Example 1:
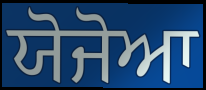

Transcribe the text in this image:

ਯੋਜੋਆ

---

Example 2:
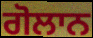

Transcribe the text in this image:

ਗੋਲਾਨ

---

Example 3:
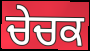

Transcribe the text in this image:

ਚੇਚਕ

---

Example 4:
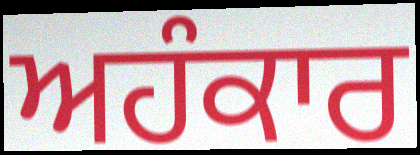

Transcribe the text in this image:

ਅਹੰਕਾਰ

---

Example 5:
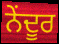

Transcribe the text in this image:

ਨੇਂਦੂਰ